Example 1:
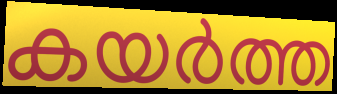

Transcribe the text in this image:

കയർത്ത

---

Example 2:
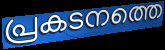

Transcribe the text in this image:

പ്രകടനത്തെ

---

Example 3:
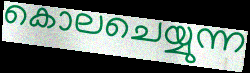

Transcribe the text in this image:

കൊലചെയ്യുന്ന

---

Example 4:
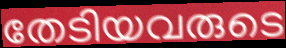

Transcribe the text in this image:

തേടിയവരുടെ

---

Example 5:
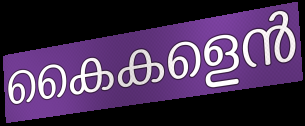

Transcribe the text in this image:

കൈകളെൻ